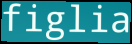
figlia